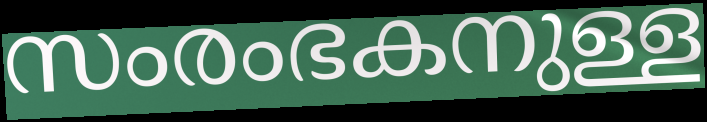
സംരംഭകനുള്ള